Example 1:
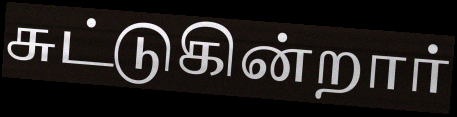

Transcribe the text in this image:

சுட்டுகின்றார்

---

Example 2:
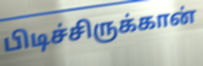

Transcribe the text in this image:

பிடிச்சிருக்கான்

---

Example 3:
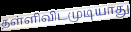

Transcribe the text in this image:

தள்ளிவிடமுடியாது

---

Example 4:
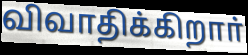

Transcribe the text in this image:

விவாதிக்கிறார்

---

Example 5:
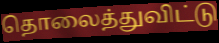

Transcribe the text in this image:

தொலைத்துவிட்டு